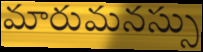
మారుమనస్సు